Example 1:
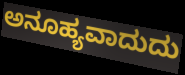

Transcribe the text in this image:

ಅನೂಹ್ಯವಾದುದು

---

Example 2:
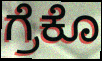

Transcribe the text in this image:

ಗ್ರೆಕೊ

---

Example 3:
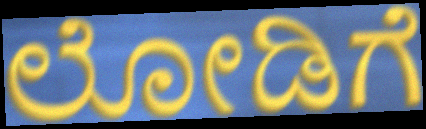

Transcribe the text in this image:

ಲೋಡಿಗೆ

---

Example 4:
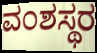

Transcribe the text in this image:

ವಂಶಸ್ಥರ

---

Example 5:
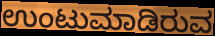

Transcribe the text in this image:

ಉಂಟುಮಾಡಿರುವ